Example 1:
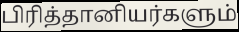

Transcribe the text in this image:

பிரித்தானியர்களும்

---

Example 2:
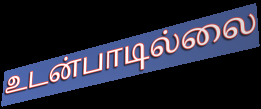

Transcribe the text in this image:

உடன்பாடில்லை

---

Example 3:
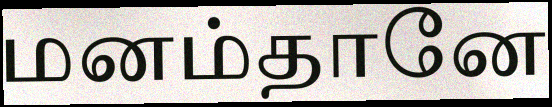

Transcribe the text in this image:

மனம்தானே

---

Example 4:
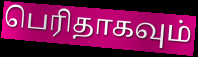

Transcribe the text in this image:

பெரிதாகவும்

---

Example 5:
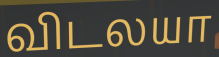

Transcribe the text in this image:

விடலயா